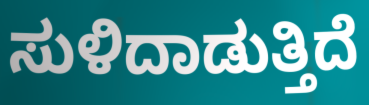
ಸುಳಿದಾಡುತ್ತಿದೆ